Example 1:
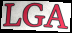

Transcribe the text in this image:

LGA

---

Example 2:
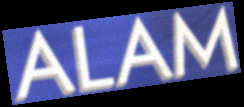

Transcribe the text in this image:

ALAM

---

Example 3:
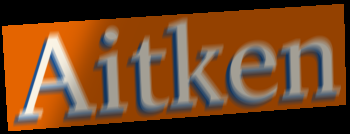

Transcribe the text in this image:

Aitken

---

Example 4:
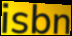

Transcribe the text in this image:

isbn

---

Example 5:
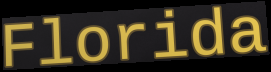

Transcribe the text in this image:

Florida